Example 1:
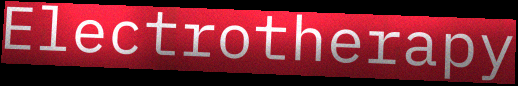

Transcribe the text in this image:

Electrotherapy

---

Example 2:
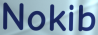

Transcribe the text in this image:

Nokib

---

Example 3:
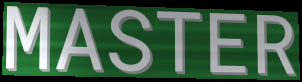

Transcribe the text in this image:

MASTER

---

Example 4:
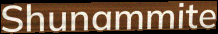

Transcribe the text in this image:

Shunammite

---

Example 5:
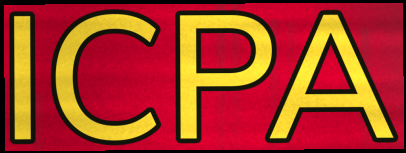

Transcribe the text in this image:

ICPA